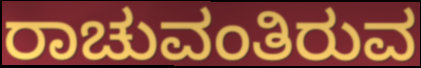
ರಾಚುವಂತಿರುವ